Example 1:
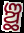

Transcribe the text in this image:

ଞ୍ଛ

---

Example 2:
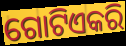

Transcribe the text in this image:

ଗୋଟିଏକରି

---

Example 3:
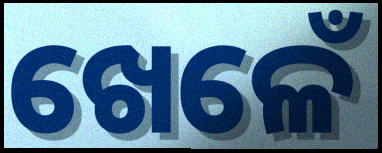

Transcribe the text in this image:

ଖେଳେଁ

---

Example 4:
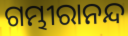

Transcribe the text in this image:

ଗମ୍ଭୀରାନନ୍ଦ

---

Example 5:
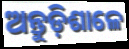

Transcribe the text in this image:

ଅନ୍ତୁଡ଼ିଶାଳେ